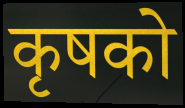
कृषको